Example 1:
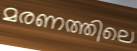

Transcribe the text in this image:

മരണത്തിലെ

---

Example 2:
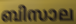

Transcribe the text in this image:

ബിസാല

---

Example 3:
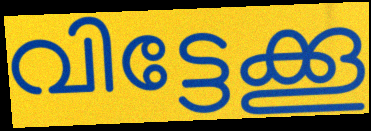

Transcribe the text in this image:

വിട്ടേക്കൂ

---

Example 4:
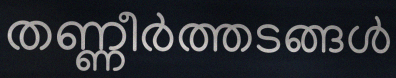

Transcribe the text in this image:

തണ്ണീർത്തടങ്ങൾ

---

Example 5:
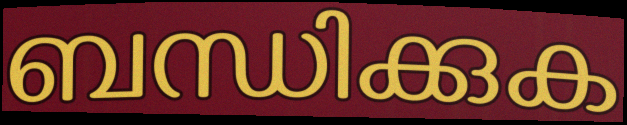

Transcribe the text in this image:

ബന്ധിക്കുക